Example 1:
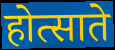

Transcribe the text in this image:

होत्साते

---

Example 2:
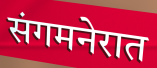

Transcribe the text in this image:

संगमनेरात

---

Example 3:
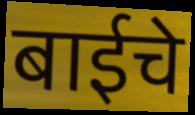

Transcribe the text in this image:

बाईचे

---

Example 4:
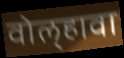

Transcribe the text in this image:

वोल्हावा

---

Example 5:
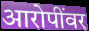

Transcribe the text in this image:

आरोपींवर